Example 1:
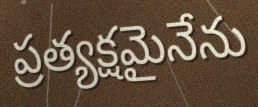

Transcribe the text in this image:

ప్రత్యక్షమైనేను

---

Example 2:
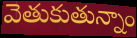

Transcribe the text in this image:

వెతుకుతున్నాం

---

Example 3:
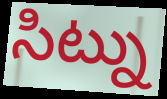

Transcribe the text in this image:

సిట్ను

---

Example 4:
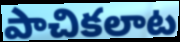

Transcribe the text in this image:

పాచికలాట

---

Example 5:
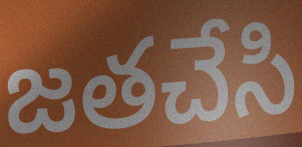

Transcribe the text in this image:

జతచేసి